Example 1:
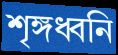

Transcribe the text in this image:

শৃঙ্গধ্বনি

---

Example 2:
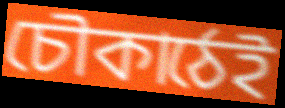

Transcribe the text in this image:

চৌকাঠেই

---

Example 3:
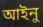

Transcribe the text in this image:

আইনু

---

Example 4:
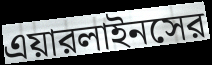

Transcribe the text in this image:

এয়ারলাইনসের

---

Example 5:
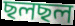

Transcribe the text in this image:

ছলছল